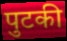
पुटकी